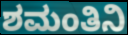
ಶಮಂತಿನಿ